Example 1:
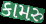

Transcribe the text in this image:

કામરુ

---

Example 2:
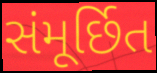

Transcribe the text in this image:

સંમૂર્છિત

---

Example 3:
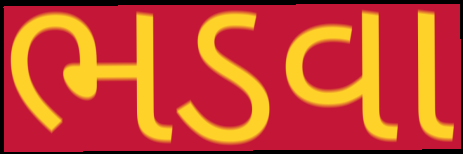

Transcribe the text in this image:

ભડવા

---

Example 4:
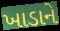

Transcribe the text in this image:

ખાડાને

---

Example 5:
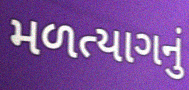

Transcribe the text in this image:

મળત્યાગનું